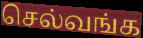
செல்வங்க